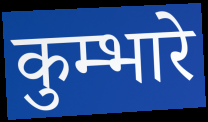
कुम्भारे